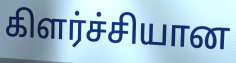
கிளர்ச்சியான